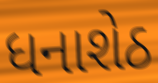
ધનાશેઠ